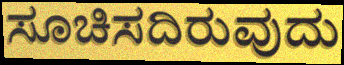
ಸೂಚಿಸದಿರುವುದು